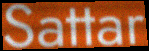
Sattar